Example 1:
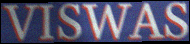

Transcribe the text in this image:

VISWAS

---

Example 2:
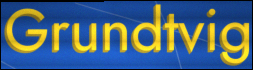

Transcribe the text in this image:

Grundtvig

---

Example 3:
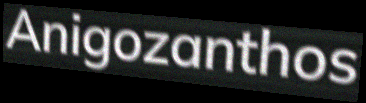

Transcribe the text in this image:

Anigozanthos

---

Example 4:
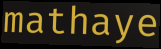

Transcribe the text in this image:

mathaye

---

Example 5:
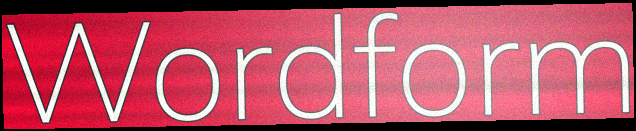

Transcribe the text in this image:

Wordform